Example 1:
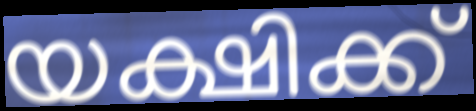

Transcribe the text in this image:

യക്ഷിക്ക്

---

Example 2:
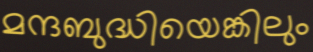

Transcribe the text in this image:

മന്ദബുദ്ധിയെങ്കിലും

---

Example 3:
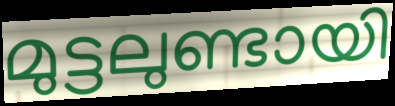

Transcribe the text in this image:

മുട്ടലുണ്ടായി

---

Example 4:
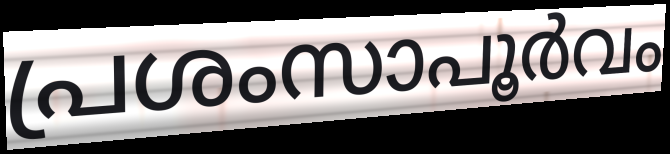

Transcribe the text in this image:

പ്രശംസാപൂർവം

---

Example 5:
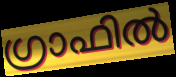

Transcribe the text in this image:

ഗ്രാഫിൽ